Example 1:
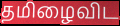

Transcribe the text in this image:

தமிழைவிட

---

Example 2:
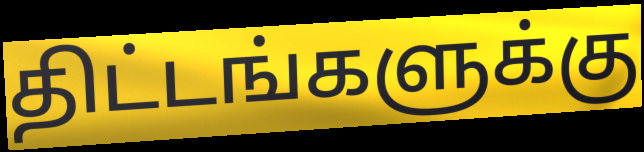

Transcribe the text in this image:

திட்டங்களுக்கு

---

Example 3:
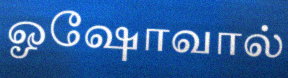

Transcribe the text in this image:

ஓஷோவால்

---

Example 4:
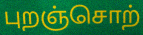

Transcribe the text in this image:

புறஞ்சொற்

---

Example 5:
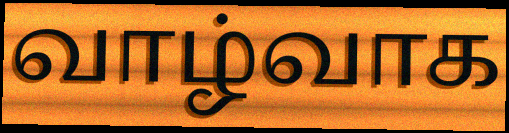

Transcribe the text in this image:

வாழ்வாக